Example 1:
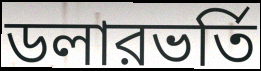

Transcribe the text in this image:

ডলারভর্তি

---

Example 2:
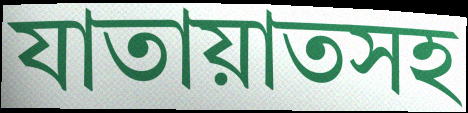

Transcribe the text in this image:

যাতায়াতসহ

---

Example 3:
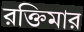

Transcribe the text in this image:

রক্তিমার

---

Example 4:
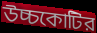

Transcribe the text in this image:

উচ্চকোটির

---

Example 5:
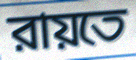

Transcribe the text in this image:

রায়তে